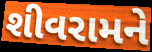
શીવરામને